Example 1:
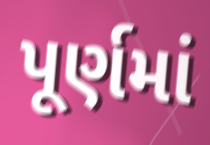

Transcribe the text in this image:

પૂર્ણમાં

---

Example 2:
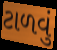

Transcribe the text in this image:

ટાળવું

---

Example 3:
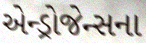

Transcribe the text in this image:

એન્ડ્રોજેન્સના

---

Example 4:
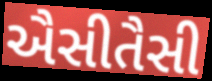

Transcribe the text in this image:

ઐસીતૈસી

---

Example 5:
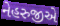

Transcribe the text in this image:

નેહરુજીએ